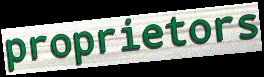
proprietors